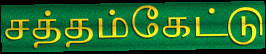
சத்தம்கேட்டு